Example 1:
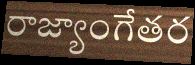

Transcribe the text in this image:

రాజ్యాంగేతర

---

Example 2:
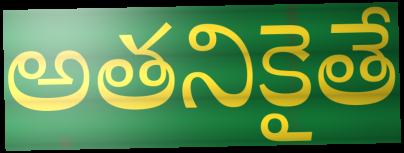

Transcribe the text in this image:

అతనికైతే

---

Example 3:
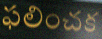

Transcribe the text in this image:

ఫలించక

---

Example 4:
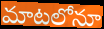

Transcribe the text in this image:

మాటలోనూ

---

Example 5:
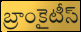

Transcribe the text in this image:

బ్రాంకైటీస్